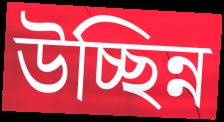
উচ্ছিন্ন